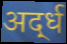
अर्द्ध